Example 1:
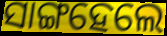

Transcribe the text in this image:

ସାଙ୍ଗହେଲେ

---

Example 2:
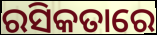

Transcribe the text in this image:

ରସିକତାରେ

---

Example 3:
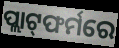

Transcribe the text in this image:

ପ୍ଲାଟ୍‌ଫର୍ମରେ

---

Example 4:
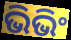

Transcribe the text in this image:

ଭିଭିଂ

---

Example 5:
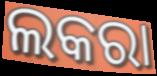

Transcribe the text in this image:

ଲକରା